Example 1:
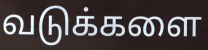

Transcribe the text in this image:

வடுக்களை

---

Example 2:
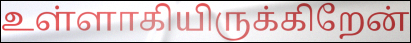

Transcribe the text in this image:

உள்ளாகியிருக்கிறேன்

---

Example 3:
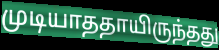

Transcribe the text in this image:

முடியாததாயிருந்தது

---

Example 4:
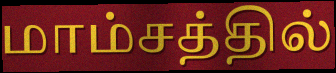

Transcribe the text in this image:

மாம்சத்தில்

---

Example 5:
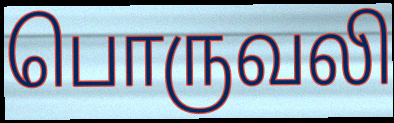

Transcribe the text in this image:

பொருவலி